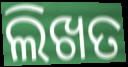
ଲିଖତ